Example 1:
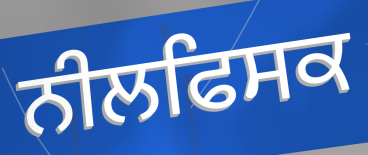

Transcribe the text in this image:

ਨੀਲਫਿਸਕ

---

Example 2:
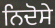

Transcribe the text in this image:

ਨਿਦੋਸੇ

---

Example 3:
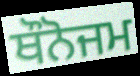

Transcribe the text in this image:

ਥੌਨੋਜਮ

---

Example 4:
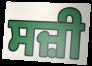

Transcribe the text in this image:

ਸਜ਼ੀ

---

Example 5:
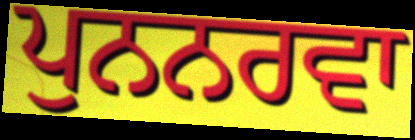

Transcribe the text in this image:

ਪੁਨਨਰਵਾ